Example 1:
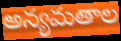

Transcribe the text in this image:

అన్యమతాల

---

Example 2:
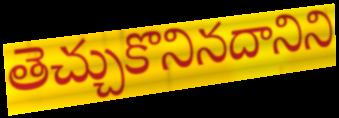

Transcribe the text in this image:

తెచ్చుకొనినదానిని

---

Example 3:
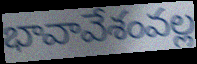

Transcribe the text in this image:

భావావేశంవల్ల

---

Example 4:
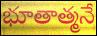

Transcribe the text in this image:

భూతాత్మనే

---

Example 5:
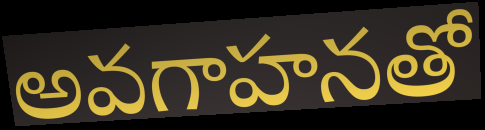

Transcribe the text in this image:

అవగాహనతో